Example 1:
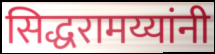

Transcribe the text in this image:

सिद्धरामय्यांनी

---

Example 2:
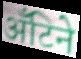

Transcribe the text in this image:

अँटिने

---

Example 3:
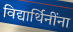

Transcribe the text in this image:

विद्यार्थिनींना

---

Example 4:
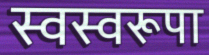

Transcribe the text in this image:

स्वस्वरूपा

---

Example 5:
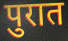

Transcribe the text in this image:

पुरात